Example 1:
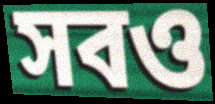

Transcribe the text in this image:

সবও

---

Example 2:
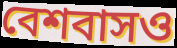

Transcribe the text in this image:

বেশবাসও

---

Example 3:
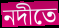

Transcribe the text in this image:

নদীতে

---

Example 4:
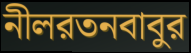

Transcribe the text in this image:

নীলরতনবাবুর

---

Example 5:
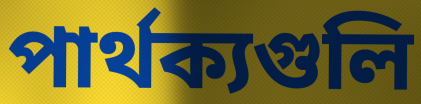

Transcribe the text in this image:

পার্থক্যগুলি